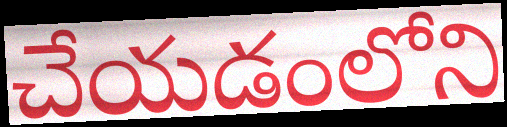
చేయడంలోని